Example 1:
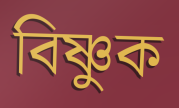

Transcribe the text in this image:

বিষ্ণুক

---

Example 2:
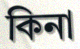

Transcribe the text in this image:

কিনা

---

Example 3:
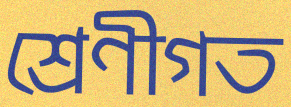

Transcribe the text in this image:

শ্ৰেণীগত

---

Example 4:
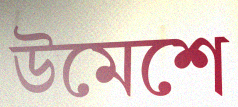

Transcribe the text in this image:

উমেশে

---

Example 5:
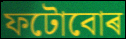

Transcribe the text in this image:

ফটোবোৰ